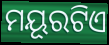
ମୟୂରଟିଏ